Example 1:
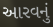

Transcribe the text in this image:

આરવનું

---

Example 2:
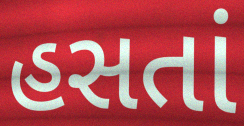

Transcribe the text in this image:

હસતાં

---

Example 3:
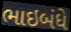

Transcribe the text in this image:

ભાઇબંધે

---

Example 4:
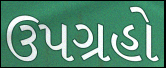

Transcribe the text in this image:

ઉપગ્રહો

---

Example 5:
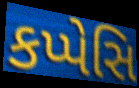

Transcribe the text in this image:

કપ્પેસિ